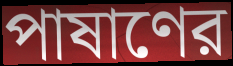
পাষাণের